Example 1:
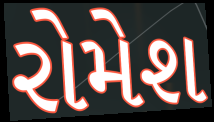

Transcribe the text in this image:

રોમેશ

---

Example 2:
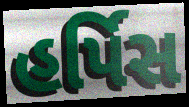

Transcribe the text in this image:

હર્પિસ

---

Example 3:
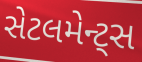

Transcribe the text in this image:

સેટલમેન્ટ્સ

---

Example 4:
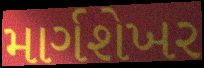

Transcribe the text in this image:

માર્ગશેખર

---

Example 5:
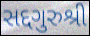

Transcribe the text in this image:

સદ્દગુરુશ્રી